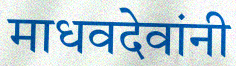
माधवदेवांनी